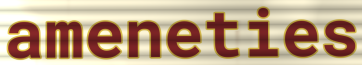
ameneties